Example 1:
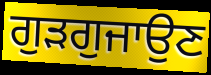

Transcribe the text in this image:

ਗੁੜਗੁਜਾਉਣ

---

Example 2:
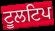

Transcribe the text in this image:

ਟੂਲਟਿਪ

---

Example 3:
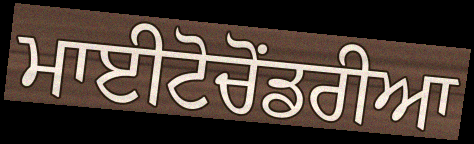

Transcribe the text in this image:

ਮਾਈਟੋਚੋਂਡਰੀਆ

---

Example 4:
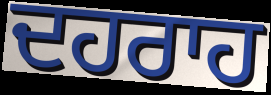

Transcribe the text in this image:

ਦਹਰਾਹ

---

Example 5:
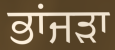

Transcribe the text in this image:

ਭਾਂਜੜਾ